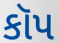
કૉપ